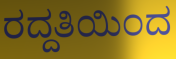
ರದ್ದತಿಯಿಂದ